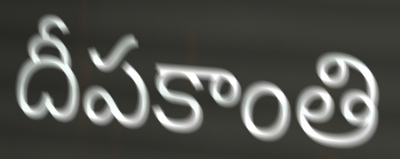
దీపకాంతి